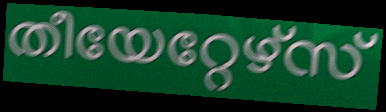
തീയേറ്റേഴ്സ്